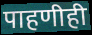
पाहणीही